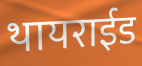
थायराईड